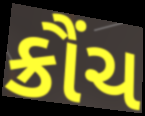
ક્રૌંચ